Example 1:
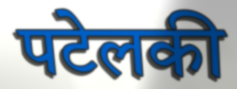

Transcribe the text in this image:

पटेलकी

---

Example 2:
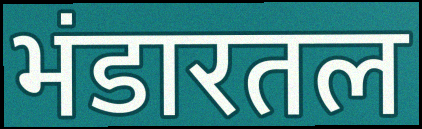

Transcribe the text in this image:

भंडारतल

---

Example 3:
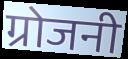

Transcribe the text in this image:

ग्रोजनी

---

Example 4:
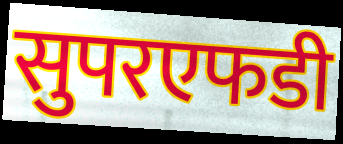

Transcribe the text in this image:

सुपरएफडी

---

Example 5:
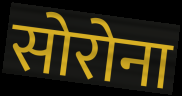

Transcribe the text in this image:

सोरोना